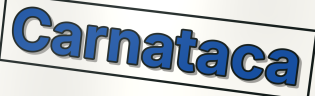
Carnataca